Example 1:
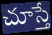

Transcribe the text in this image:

చూస్తే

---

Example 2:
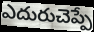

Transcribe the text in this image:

ఎదురుచెప్పే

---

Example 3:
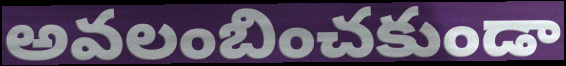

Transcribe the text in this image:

అవలంబించకుండా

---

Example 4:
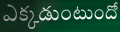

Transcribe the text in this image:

ఎక్కడుంటుందో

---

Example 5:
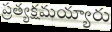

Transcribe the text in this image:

ప్రత్యక్షమయ్యారు